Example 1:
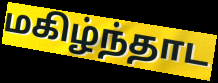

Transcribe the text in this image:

மகிழ்ந்தாட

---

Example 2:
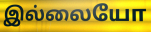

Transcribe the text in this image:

இல்லையோ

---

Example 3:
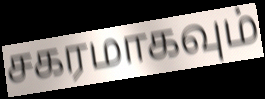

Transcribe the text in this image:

சகரமாகவும்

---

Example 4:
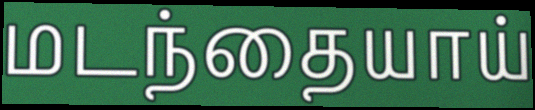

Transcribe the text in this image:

மடந்தையாய்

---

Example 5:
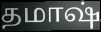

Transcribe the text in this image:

தமாஷ்